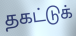
தகட்டுக்